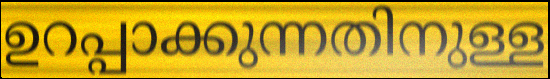
ഉറപ്പാക്കുന്നതിനുള്ള